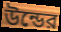
উন্ডের